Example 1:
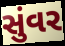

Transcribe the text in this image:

સુંવર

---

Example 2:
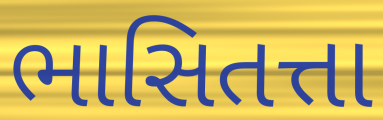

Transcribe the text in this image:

ભાસિતત્તા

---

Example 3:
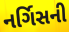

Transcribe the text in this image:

નર્ગિસની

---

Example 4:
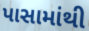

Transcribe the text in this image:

પાસામાંથી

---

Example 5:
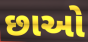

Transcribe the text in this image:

છાઓ